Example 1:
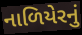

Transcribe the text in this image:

નાળિયેરનું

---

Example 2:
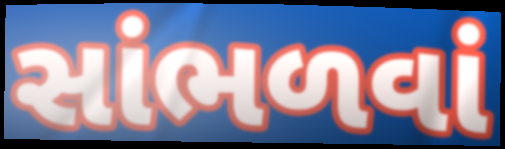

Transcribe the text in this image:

સાંભળવાં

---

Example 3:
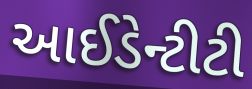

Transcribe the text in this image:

આઈડેન્ટીટી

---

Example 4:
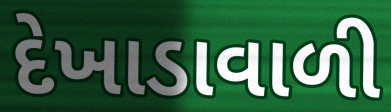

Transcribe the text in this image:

દેખાડાવાળી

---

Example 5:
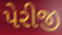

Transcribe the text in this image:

પેરીજી